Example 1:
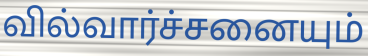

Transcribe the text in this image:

வில்வார்ச்சனையும்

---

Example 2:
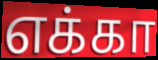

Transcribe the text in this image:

எக்கா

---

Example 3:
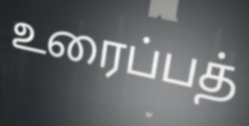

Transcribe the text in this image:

உரைப்பத்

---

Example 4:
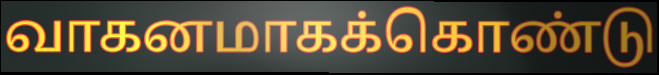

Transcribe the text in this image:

வாகனமாகக்கொண்டு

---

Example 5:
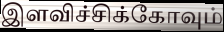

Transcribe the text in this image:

இளவிச்சிக்கோவும்